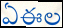
ఏఈల